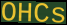
OHCs